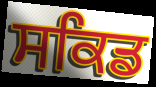
ਸਕਿਡ